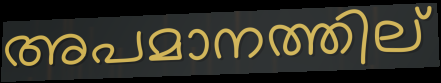
അപമാനത്തില്